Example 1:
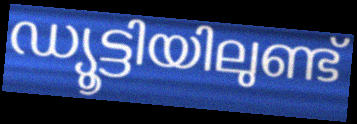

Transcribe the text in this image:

ഡ്യൂട്ടിയിലുണ്ട്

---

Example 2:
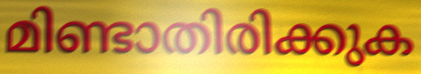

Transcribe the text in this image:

മിണ്ടാതിരിക്കുക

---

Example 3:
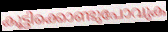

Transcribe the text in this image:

കൂട്ടിക്കൊണ്ടുപോവുക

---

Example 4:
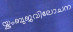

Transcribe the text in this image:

യ്കംബുജവിലോചന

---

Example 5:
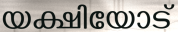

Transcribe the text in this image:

യക്ഷിയോട്